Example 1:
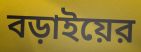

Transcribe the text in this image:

বড়াইয়ের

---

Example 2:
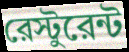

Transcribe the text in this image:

রেস্টুরেন্ট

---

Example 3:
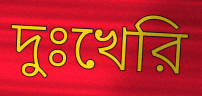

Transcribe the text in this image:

দুঃখেরি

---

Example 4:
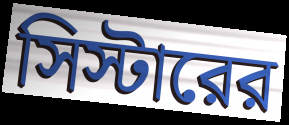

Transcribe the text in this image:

সিস্টারের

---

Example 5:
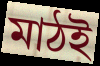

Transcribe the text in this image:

মাঠই